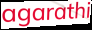
agarathi